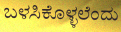
ಬಳಸಿಕೊಳ್ಳಲೆಂದು